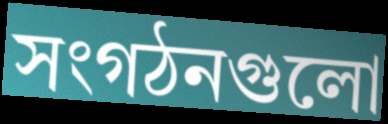
সংগঠনগুলো